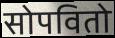
सोपवितो